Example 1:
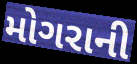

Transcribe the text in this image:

મોગરાની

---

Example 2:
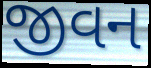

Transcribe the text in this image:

જીવન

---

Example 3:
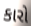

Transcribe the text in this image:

કારો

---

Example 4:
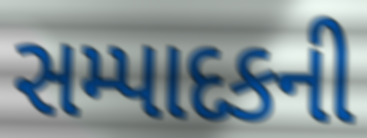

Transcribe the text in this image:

સમ્પાદકની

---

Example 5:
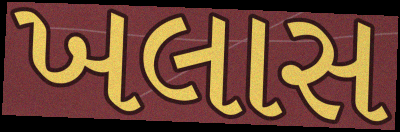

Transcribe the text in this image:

ખલાસ